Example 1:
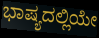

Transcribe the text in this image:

ಭಾಷ್ಯದಲ್ಲಿಯೇ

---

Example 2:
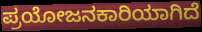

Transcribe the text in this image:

ಪ್ರಯೋಜನಕಾರಿಯಾಗಿದೆ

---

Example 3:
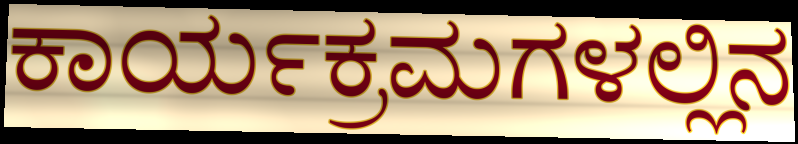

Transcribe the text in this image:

ಕಾರ್ಯಕ್ರಮಗಳಲ್ಲಿನ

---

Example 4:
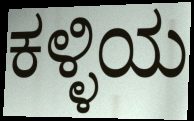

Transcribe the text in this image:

ಕಳ್ಳಿಯ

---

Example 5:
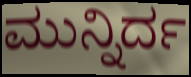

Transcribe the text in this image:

ಮುನ್ನಿರ್ದ